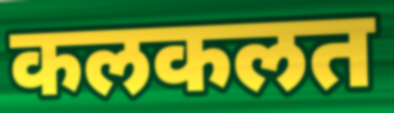
कलकलत